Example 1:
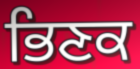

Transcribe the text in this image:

ਭਿਣਕ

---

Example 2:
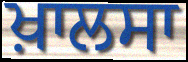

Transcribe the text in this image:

ਖ਼ਾਲਸਾ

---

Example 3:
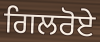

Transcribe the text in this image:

ਗਿਲਰੋਏ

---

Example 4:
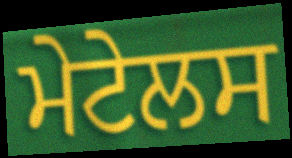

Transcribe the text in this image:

ਮੇਟੇਲਸ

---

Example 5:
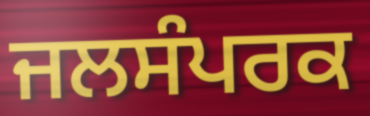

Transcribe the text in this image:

ਜਲਸੰਪਰਕ